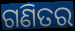
ଗଣିତର